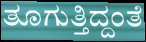
ತೂಗುತ್ತಿದ್ದಂತೆ